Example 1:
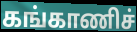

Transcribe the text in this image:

கங்காணிச்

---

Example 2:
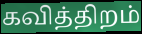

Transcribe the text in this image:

கவித்திறம்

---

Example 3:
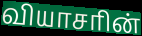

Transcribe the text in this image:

வியாசரின்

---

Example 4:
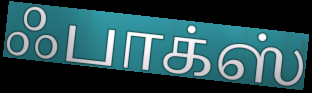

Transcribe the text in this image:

ஃபாக்ஸ்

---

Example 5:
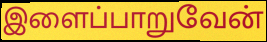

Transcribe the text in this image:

இளைப்பாறுவேன்